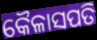
କୈଳାସପତି